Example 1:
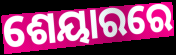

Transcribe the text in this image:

ଶେୟାରରେ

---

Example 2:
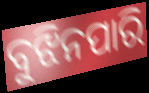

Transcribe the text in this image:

ବୁଝିନପାରି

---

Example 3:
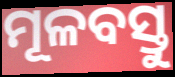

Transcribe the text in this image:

ମୂଳବସ୍ତୁ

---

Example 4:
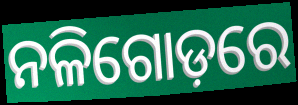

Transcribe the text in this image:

ନଳିଗୋଡ଼ରେ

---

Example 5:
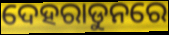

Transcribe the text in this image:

ଦେହରାଡୁନରେ